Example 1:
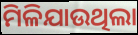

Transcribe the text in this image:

ମିଳିଯାଉଥିଲା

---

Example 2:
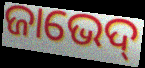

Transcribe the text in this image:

ଜାଭେଦ୍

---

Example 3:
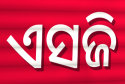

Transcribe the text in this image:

ଏସଜି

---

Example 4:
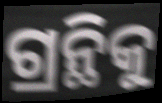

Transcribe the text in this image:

ଗ୍ରନ୍ଥିକୁ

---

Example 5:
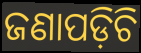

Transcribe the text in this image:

ଜଣାପଡ଼ିଚି